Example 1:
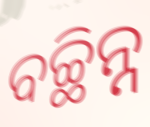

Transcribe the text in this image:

ବଚ୍ଛିନ୍ନ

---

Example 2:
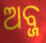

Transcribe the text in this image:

ଅବ୍ଜ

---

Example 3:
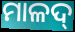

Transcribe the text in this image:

ମାଳଦ୍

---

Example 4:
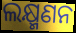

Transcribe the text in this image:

ଲକ୍ଷ୍ମଣନ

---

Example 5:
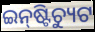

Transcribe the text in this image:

ଇନ୍‍ଷ୍ଟିଚ୍ୟୁଟ